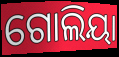
ଗୋଲିୟା